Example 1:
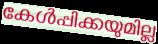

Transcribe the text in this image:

കേൾപ്പിക്കയുമില്ല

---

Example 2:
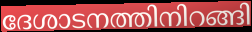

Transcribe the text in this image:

ദേശാടനത്തിനിറങ്ങി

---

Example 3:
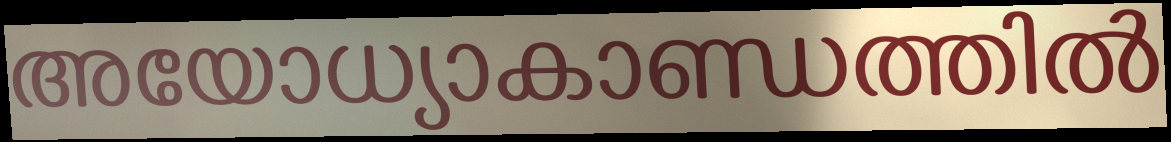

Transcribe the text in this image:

അയോധ്യാകാണ്ഡത്തിൽ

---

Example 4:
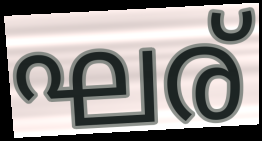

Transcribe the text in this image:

ഘര്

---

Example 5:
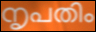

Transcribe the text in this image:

നൃപതിം